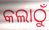
କଲାଠୁଁ